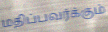
மதிப்பவர்க்கும்